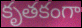
కృతకంగా